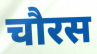
चौरस